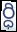
ర్ధి